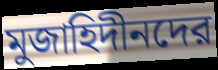
মুজাহিদীনদের